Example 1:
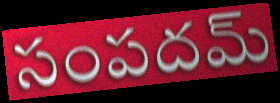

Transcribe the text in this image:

సంపదమ్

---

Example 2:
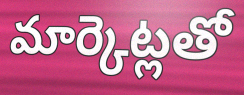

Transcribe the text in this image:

మార్కెట్లతో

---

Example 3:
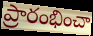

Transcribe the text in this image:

ప్రారంభించా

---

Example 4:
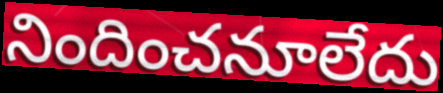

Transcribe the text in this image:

నిందించనూలేదు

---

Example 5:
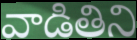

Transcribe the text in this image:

వాడితిని